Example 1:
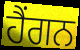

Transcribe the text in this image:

ਹੈਂਗਨ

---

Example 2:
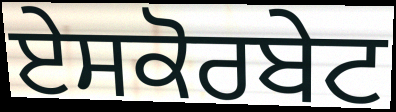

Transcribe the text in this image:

ਏਸਕੋਰਬੇਟ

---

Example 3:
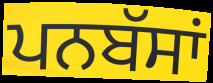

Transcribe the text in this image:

ਪਨਬੱਸਾਂ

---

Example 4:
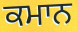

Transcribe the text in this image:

ਕਮਾਨ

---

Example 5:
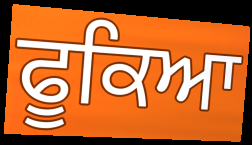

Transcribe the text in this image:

ਫੂਕਿਆ